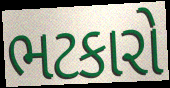
ભટકારો